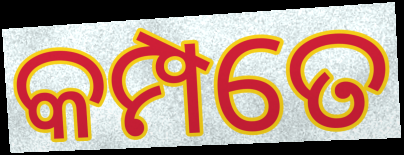
କମ୍ପତେ